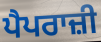
ਪੈਪਰਾਜ਼ੀ